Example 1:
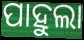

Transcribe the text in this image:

ପାହୁଲା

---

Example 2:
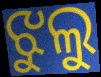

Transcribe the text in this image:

ଝୁଲୁ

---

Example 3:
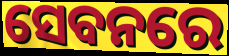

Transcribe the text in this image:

ସେବନରେ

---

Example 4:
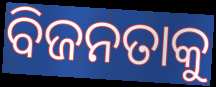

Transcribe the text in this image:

ବିଜନତାକୁ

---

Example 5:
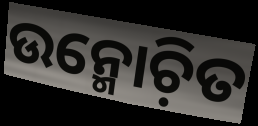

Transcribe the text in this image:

ଉନ୍ମୋଚ଼ିତ